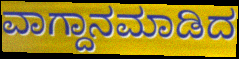
ವಾಗ್ದಾನಮಾಡಿದ